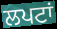
ਲਪਟਾਂ